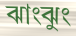
ঝাংঝুং